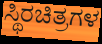
ಸ್ಥಿರಚಿತ್ರಗಳ